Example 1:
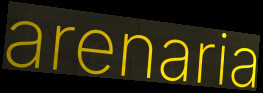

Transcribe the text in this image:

arenaria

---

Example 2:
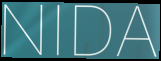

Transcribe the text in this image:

NIDA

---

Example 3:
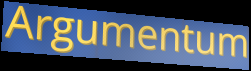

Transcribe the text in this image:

Argumentum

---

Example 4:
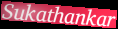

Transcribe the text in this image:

Sukathankar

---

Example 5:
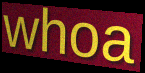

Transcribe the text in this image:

whoa